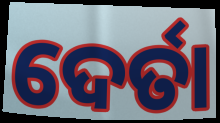
ଦେର୍ତା